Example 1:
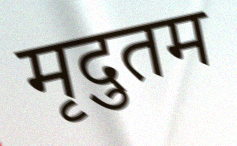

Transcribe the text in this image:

मृदुतम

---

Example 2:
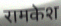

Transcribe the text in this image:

रामकेश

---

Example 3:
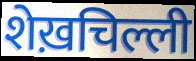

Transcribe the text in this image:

शेख़चिल्ली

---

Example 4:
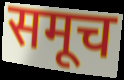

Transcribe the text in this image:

समूच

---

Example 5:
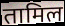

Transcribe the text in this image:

तामिल